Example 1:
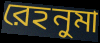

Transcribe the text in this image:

রেহনুমা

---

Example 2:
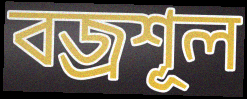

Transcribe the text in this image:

বজ্রশূল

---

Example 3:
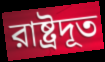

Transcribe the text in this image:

রাষ্ট্রদূত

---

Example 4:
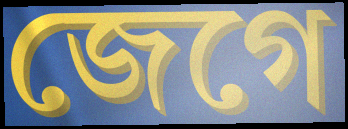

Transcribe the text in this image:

জেগে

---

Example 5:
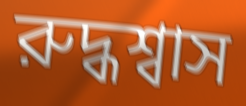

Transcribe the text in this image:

রুদ্ধশ্বাস